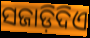
ସଜାଡ଼ିଦିଏ